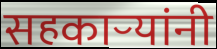
सहकाऱ्यांनी